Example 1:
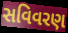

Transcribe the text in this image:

સવિવરણ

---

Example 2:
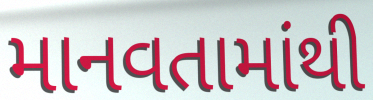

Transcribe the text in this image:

માનવતામાંથી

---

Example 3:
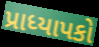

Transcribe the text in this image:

પ્રાધ્યાપકો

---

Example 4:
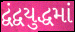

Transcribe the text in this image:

દ્વંદ્વયુદ્ધમાં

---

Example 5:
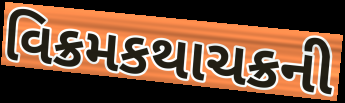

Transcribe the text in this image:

વિક્રમકથાચક્રની